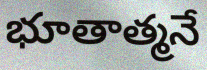
భూతాత్మనే